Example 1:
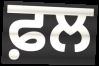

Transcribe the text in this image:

ਫ਼ਲ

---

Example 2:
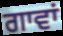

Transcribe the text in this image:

ਗਾਵਾਂ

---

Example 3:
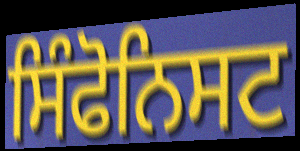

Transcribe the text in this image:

ਸਿੰਫੋਨਿਸਟ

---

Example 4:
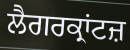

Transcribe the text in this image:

ਲੈਗਰਕ੍ਰਾਂਟਜ਼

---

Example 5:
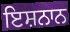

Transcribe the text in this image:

ਇਸ਼ਨਾਨ